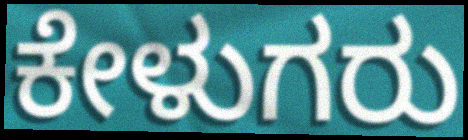
ಕೇಳುಗರು